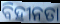
ବିହୀନତା